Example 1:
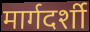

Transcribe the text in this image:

मार्गदर्शी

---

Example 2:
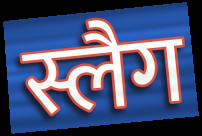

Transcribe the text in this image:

स्लैग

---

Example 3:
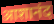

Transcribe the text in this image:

आशानंद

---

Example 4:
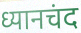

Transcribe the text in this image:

ध्यानचंद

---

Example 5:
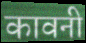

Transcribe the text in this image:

कावनी